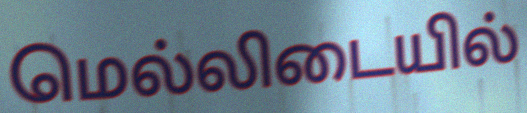
மெல்லிடையில்